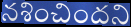
నశించిందని